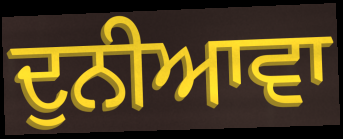
ਦੁਨੀਆਵਾ